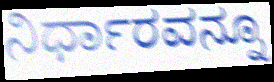
ನಿರ್ಧಾರವನ್ನೂ